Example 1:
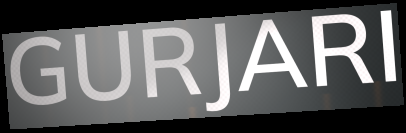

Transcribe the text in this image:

GURJARI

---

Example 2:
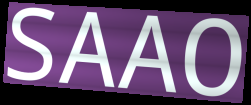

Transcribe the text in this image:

SAAO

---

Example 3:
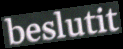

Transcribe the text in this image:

beslutit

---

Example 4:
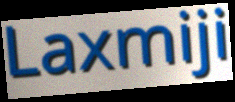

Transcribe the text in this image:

Laxmiji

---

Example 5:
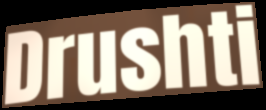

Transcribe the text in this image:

Drushti